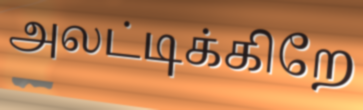
அலட்டிக்கிறே